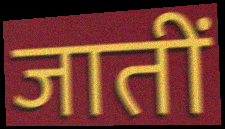
जातीं